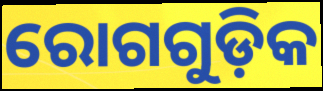
ରୋଗଗୁଡ଼ିକ